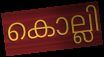
കൊല്ലി